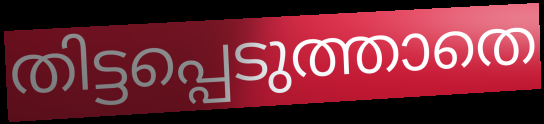
തിട്ടപ്പെടുത്താതെ